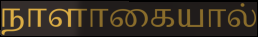
நாளாகையால்